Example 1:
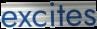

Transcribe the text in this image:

excites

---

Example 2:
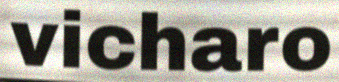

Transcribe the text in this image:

vicharo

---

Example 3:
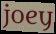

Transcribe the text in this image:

joey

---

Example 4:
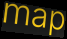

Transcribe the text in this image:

map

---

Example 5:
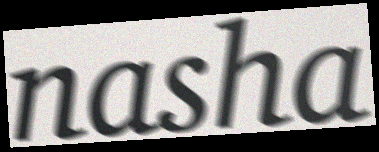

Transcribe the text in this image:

nasha